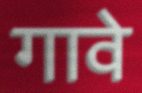
गावे